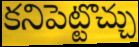
కనిపెట్టొచ్చు